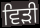
ਵਿੜੀ